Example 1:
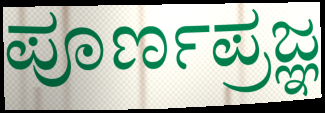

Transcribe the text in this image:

ಪೂರ್ಣಪ್ರಜ್ಞ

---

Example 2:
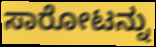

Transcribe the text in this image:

ಸಾರೋಟನ್ನು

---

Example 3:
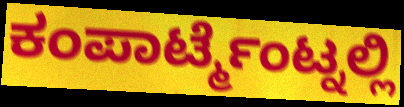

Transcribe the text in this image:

ಕಂಪಾರ್ಟ್ಮೆಂಟ್ನಲ್ಲಿ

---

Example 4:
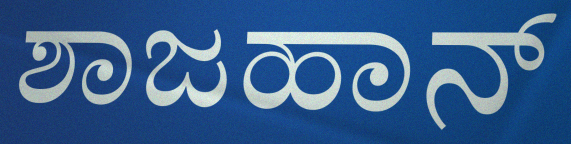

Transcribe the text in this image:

ಶಾಜಹಾನ್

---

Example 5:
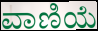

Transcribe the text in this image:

ವಾಣಿಯೆ